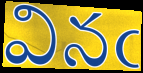
వినఁ